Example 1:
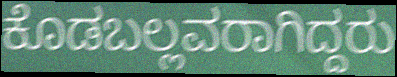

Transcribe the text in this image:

ಕೊಡಬಲ್ಲವರಾಗಿದ್ದರು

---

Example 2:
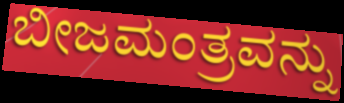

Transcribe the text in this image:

ಬೀಜಮಂತ್ರವನ್ನು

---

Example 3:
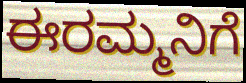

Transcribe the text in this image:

ಈರಮ್ಮನಿಗೆ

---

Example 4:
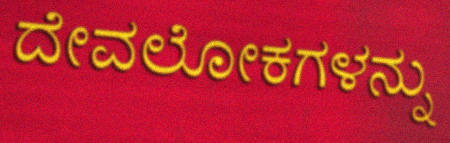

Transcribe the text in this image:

ದೇವಲೋಕಗಳನ್ನು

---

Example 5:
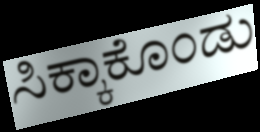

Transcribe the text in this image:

ಸಿಕ್ಕಾಕೊಂಡು